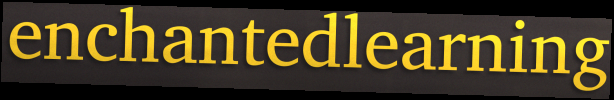
enchantedlearning